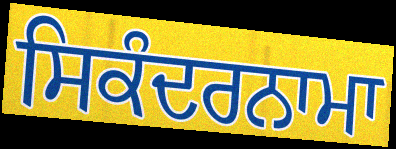
ਸਿਕੰਦਰਨਾਮਾ